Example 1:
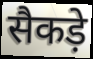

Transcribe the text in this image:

सैकड़े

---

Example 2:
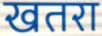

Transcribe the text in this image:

खतरा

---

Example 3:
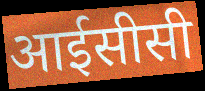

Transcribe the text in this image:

आईसीसी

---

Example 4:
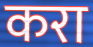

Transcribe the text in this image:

करा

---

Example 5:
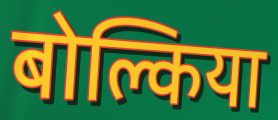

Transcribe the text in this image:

बोल्किया